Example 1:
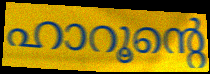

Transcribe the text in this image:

ഹാറൂന്റെ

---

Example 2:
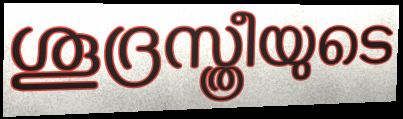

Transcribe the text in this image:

ശൂദ്രസ്ത്രീയുടെ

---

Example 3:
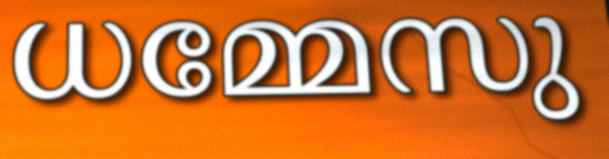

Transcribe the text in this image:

ധമ്മേസു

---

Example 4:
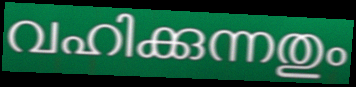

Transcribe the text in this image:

വഹിക്കുന്നതും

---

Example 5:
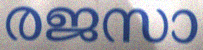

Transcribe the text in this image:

രജസാ